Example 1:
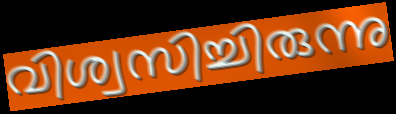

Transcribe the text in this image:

വിശ്വസിച്ചിരുന്നു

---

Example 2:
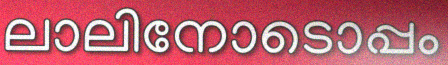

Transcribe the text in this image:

ലാലിനോടൊപ്പം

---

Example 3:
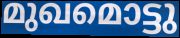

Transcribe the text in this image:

മുഖമൊട്ടു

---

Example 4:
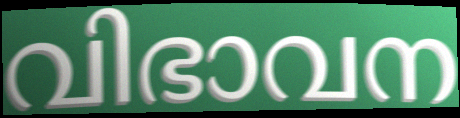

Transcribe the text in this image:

വിഭാവന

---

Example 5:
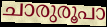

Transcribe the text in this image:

ചാരുരൂപാ